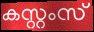
കസ്റ്റംസ്